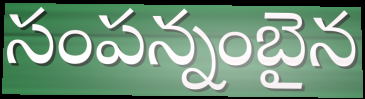
సంపన్నంబైన